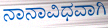
ನಾನಾವಿಧವಾಗಿ